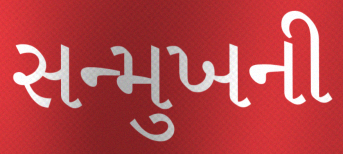
સન્મુખની